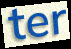
ter